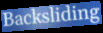
Backsliding